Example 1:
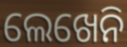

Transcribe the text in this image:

ଲେଖେନି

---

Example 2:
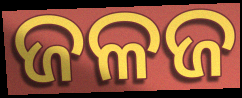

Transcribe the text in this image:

ଜଳଜ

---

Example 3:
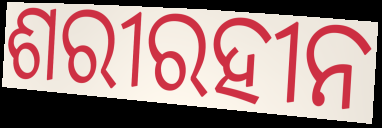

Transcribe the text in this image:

ଶରୀରହୀନ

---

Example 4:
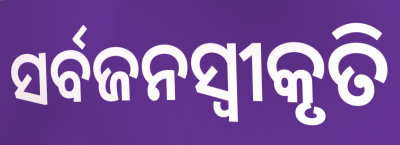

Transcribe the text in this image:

ସର୍ବଜନସ୍ୱୀକୃତି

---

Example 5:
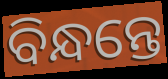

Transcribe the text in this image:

ବିନ୍ଧନ୍ତେ